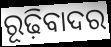
ରୂଢ଼ିବାଦର